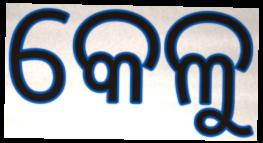
କେଳୁ